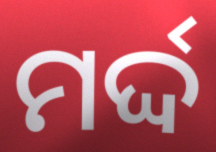
ମର୍ଦ୍ଦ